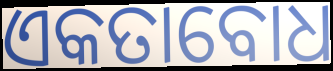
ଏକତାବୋଧ